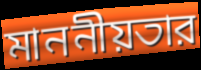
মাননীয়তার